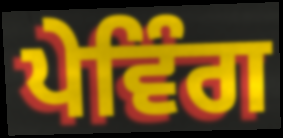
ਪੇਵਿੰਗ